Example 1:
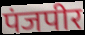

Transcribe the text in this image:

पंजपीर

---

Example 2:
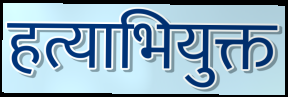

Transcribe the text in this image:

हत्याभियुक्त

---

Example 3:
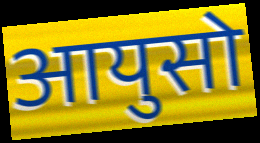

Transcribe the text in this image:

आयुसो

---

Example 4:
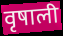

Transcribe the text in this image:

वृषाली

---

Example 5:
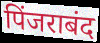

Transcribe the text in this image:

पिंजराबंद